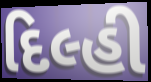
દિલ્હી